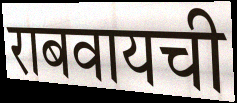
राबवायची